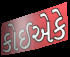
કોઈએકે